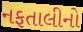
નફતાલીનો